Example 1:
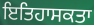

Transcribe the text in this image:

ਇਤਿਹਾਸਕਤਾ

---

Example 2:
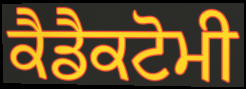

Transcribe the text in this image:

ਕੈਡੈਕਟੋਮੀ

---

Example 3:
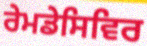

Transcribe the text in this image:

ਰੇਮਡੇਸਿਵਿਰ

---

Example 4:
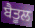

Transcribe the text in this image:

ਬੈਤੂਲ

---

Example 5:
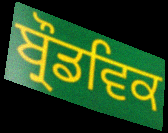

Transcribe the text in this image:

ਬ੍ਰੌਡਵਿਕ